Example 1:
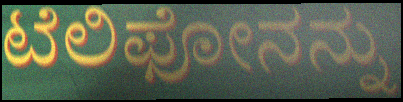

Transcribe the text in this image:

ಟೆಲಿಫೋನನ್ನು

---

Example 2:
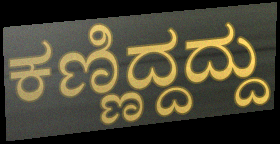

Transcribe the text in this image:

ಕಣ್ಣಿದ್ದದ್ದು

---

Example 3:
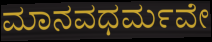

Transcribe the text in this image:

ಮಾನವಧರ್ಮವೇ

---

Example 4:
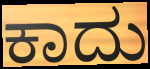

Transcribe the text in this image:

ಕಾದು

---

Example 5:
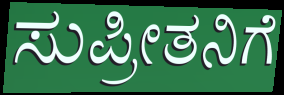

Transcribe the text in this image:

ಸುಪ್ರೀತನಿಗೆ